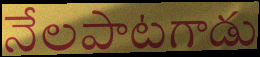
నేలపాటగాడు